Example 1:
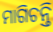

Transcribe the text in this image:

ମାଗିଚନ୍ତି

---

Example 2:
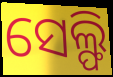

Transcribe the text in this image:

ସେଲ୍ଫି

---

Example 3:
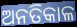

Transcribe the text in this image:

ଅନତିକାଳ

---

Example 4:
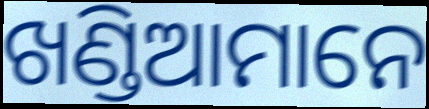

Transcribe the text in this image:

ଖଣ୍ଡିଆମାନେ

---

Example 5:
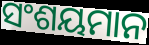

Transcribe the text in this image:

ସଂଶୟମାନ